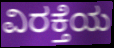
ವಿರಕ್ತೆಯ